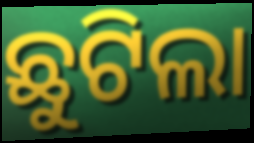
ଛୁଟିଲା